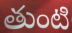
తుంటి